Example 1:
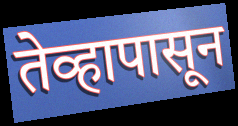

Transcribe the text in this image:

तेव्हापासून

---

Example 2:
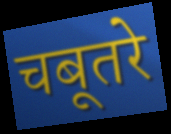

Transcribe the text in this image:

चबूतरे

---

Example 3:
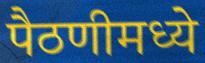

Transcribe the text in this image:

पैठणीमध्ये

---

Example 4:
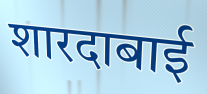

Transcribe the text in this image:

शारदाबाई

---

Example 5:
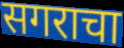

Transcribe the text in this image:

सगराचा